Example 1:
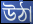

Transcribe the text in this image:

উঠা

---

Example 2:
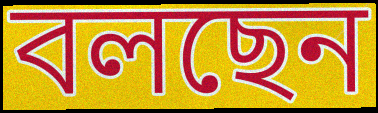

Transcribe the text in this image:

বলছেন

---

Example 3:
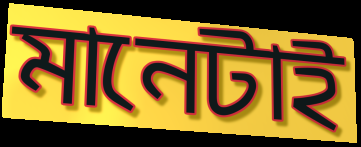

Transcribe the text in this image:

মানেটাই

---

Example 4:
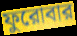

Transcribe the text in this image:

ফুরোবার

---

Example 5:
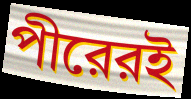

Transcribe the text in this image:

পীরেরই